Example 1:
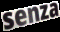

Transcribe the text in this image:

senza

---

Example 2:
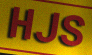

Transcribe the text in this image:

HJS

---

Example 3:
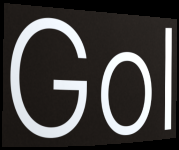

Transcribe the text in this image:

Gol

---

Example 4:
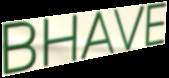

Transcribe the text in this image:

BHAVE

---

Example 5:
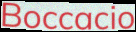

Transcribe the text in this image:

Boccacio